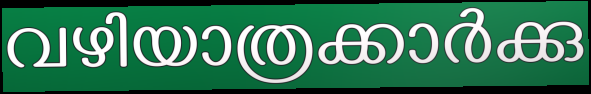
വഴിയാത്രക്കാർക്കു